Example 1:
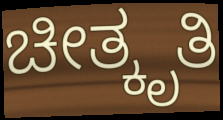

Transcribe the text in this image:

ಚೀತ್ಕೃತಿ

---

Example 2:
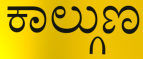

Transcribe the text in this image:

ಕಾಲ್ಗುಣ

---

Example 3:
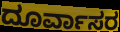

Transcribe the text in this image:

ದೂರ್ವಾಸರ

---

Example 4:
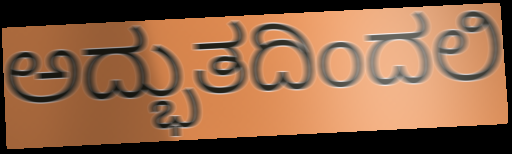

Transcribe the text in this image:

ಅದ್ಭುತದಿಂದಲಿ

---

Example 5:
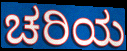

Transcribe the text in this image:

ಚರಿಯ